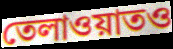
তেলাওয়াতও